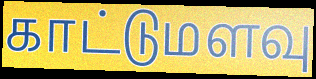
காட்டுமளவு